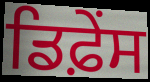
ਡਿਫ਼ੇੰਸ